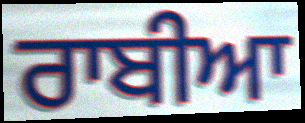
ਰਾਬੀਆ